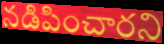
నడిపించారని